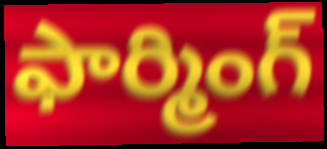
ఫార్మింగ్